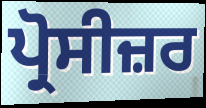
ਪ੍ਰੋਸੀਜ਼ਰ